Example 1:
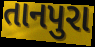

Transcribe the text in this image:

તાનપુરા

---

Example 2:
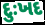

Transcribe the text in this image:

દુઃખદ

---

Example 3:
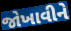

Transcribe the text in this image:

જોખાવીને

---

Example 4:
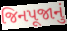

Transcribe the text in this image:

જિનપૂજાનું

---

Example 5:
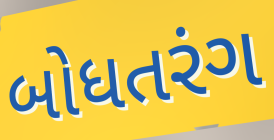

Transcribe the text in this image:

બોધતરંગ